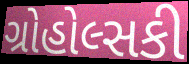
ગ્રોહોલ્સકી